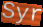
Syr